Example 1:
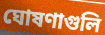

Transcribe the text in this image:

ঘোষণাগুলি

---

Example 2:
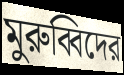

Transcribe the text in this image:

মুরুব্বিদের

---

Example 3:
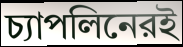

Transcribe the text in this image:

চ্যাপলিনেরই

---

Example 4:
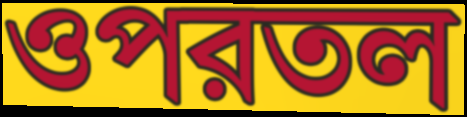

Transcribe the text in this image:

ওপরতল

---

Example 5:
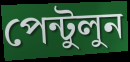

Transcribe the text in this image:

পেন্টুলুন